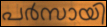
പർസായി